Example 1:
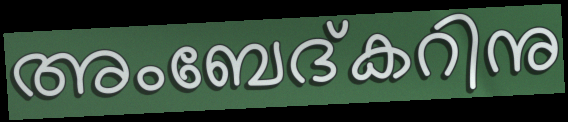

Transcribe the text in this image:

അംബേദ്കറിനു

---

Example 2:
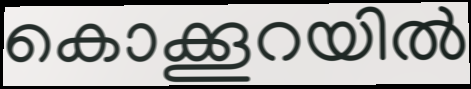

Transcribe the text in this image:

കൊക്കൂറയിൽ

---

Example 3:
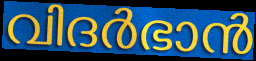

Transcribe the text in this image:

വിദർഭാൻ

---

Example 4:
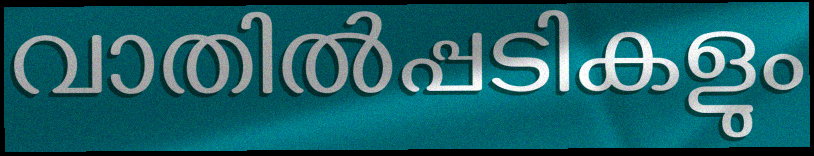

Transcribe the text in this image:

വാതിൽപ്പടികളും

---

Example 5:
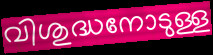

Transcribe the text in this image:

വിശുദ്ധനോടുള്ള